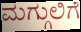
ಮಗ್ಗುಲಿಗೆ